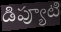
డిప్యూటి